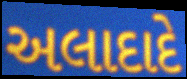
અલાદાદે